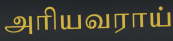
அரியவராய்